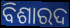
ବିଶାରଦ